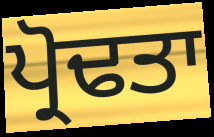
ਪ੍ਰੋਢਤਾ